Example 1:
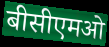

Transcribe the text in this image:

बीसीएमओ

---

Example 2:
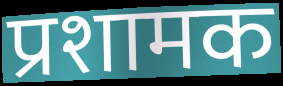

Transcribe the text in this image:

प्रशामक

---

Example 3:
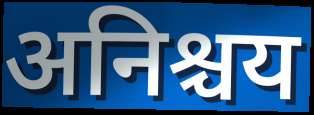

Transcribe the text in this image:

अनिश्चय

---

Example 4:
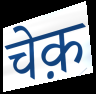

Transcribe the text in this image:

चेक़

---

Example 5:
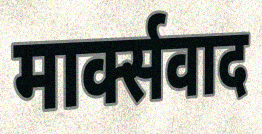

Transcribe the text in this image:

मार्क्सवाद